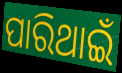
ପାରିଥାଇଁ